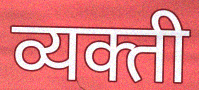
व्यक्‍ती